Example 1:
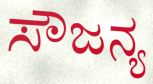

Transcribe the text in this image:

ಸೌಜನ್ಯ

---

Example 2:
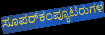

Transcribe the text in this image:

ಸೂಪರ್‌ಕಂಪ್ಯೂಟರುಗಳ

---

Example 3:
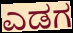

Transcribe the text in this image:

ಎಡಗ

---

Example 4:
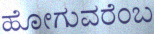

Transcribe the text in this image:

ಹೋಗುವರೆಂಬ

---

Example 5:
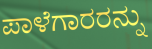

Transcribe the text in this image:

ಪಾಳೆಗಾರರನ್ನು